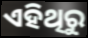
ଏହିଥିରୁ